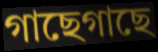
গাছেগাছে